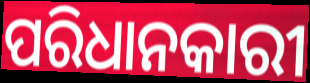
ପରିଧାନକାରୀ